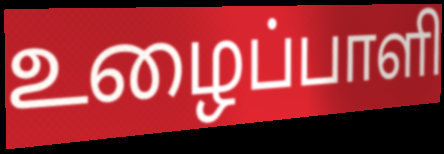
உழைப்பாளி